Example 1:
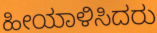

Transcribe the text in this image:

ಹೀಯಾಳಿಸಿದರು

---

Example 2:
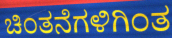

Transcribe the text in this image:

ಚಿಂತನೆಗಳಿಗಿಂತ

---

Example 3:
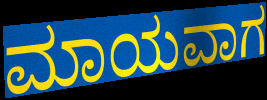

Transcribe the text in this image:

ಮಾಯವಾಗ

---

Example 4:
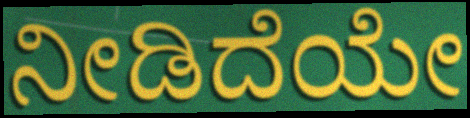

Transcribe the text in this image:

ನೀಡಿದೆಯೇ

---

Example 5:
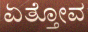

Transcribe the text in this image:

ಏತ್ತೋವ